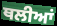
ਥਲੀਆਂ